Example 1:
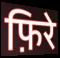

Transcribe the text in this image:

फ़िरे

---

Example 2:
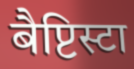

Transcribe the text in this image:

बैप्टिस्टा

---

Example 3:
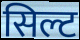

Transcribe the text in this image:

सिल्ट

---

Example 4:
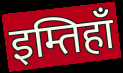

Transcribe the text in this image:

इम्तिहाँ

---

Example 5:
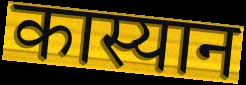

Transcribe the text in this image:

कास्यान